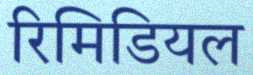
रिमिडियल